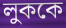
লুককে